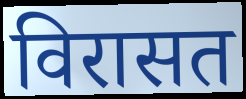
विरासत